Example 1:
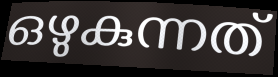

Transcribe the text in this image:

ഒഴുകുന്നത്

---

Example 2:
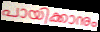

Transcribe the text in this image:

പായിക്കാനും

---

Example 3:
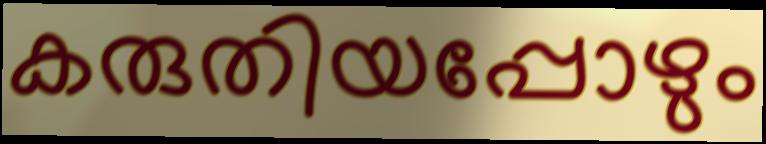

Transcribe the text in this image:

കരുതിയപ്പോഴും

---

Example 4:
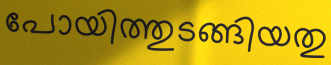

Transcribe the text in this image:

പോയിത്തുടങ്ങിയതു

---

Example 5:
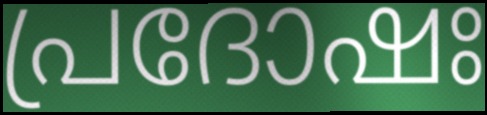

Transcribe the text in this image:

പ്രദോഷഃ